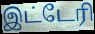
இட்டேரி